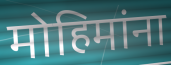
मोहिमांना